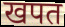
खपत